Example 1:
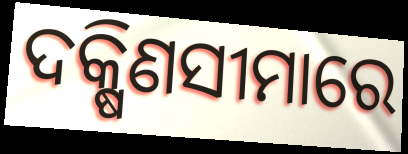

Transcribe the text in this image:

ଦକ୍ଷିଣସୀମାରେ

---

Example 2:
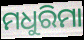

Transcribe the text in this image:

ମଧୁରିମା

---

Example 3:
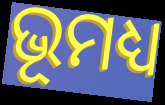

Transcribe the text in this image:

ଭୂମଧ୍ୟ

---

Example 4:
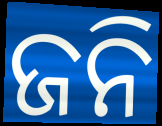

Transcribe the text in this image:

ଜନି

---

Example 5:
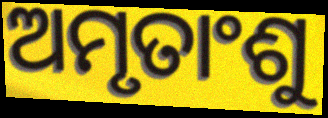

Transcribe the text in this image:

ଅମୃତାଂଶୁ